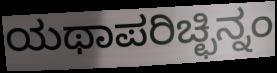
ಯಥಾಪರಿಚ್ಛಿನ್ನಂ